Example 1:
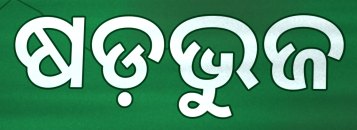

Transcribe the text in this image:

ଷଡ଼ଭୁଜ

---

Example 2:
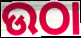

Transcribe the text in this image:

ଉଠା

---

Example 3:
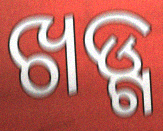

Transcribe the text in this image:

ଖଡ୍ଗ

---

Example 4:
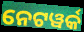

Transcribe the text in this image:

ନେଟୱର୍କ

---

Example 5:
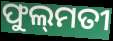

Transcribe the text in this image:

ଫୁଲ୍‍ମତୀ